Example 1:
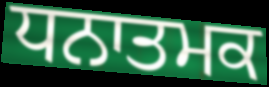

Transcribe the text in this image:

ਧਨਾਤਮਕ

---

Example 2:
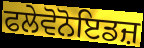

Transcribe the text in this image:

ਫਲੇਵੋਨੋਇਡਜ਼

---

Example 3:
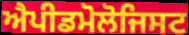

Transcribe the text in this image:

ਐਪੀਡਮੋਲੋਜਿਸਟ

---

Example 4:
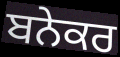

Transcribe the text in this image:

ਬਨੇਕਰ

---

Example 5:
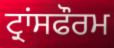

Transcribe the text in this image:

ਟ੍ਰਾਂਸਫੌਰਮ